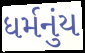
ધર્મનુંય